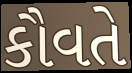
કૌવતે